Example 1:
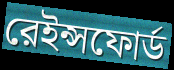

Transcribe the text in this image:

রেইন্সফোর্ড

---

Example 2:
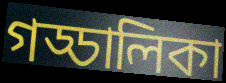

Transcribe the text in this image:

গড্ডালিকা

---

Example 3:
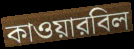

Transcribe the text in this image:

কাওয়ারবিল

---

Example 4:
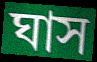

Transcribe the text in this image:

ঘাস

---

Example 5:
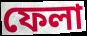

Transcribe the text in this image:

ফেলা